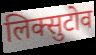
लिक्सुटोव